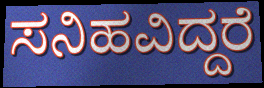
ಸನಿಹವಿದ್ದರೆ